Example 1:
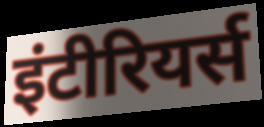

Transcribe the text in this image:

इंटीरियर्स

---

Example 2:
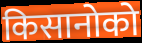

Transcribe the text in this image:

किसानोको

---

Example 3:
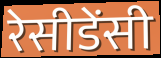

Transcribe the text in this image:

रेसीडेंसी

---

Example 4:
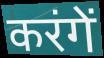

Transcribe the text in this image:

करंगें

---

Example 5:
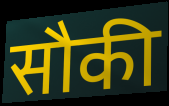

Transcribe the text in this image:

सौकी